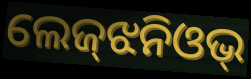
ଲେଜ୍‌ଝନିଓଭ୍